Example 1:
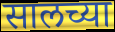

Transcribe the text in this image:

सालच्या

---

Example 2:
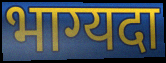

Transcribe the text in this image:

भाग्यदा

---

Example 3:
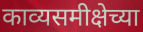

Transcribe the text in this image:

काव्यसमीक्षेच्या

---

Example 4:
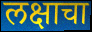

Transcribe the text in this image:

लक्षाचा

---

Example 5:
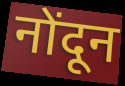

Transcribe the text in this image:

नोंदून